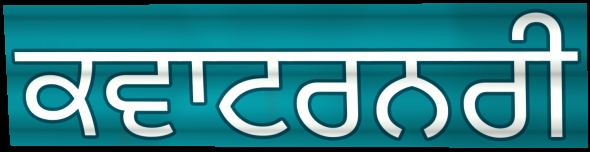
ਕਵਾਟਰਨਰੀ